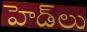
హెడ్‌లు